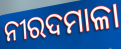
ନୀରଦମାଳା